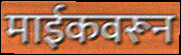
माईकवरून